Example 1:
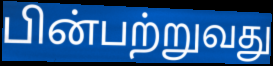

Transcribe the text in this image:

பின்பற்றுவது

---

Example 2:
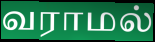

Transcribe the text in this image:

வராமல்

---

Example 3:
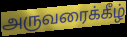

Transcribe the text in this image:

அருவரைக்கீழ்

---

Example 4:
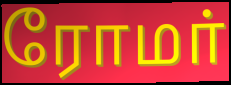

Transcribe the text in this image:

ரோமர்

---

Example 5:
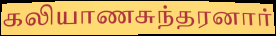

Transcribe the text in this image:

கலியாணசுந்தரனார்